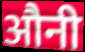
औनी